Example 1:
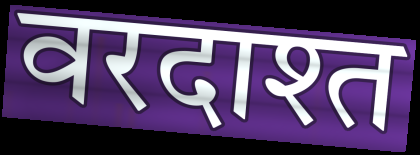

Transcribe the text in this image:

वरदाश्त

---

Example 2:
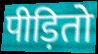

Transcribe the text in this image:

पीड़ितो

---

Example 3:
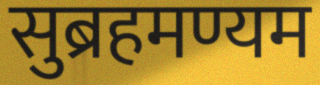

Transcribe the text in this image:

सुब्रहमण्यम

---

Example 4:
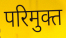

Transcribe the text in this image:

परिमुक्त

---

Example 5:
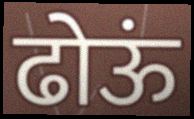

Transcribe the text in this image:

ढोऊं